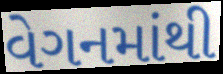
વેગનમાંથી